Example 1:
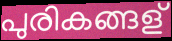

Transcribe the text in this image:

പുരികങ്ങള്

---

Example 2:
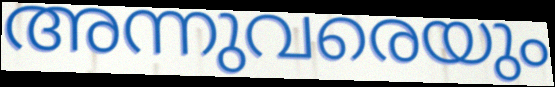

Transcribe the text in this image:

അന്നുവരെയും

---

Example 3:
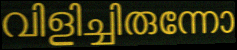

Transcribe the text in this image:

വിളിച്ചിരുന്നോ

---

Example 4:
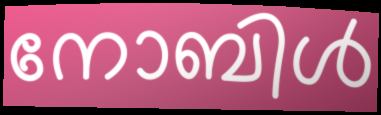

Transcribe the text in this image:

നോബിൾ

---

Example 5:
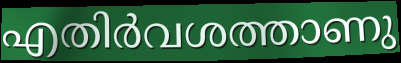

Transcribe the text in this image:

എതിർവശത്താണു